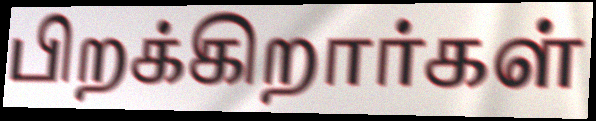
பிறக்கிறார்கள்